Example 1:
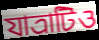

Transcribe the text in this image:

যাত্রাটিও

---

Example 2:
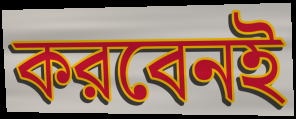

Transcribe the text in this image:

করবেনই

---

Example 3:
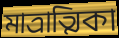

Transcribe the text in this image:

মাত্রাত্মিকা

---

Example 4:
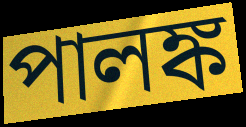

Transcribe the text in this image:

পালঙ্ক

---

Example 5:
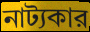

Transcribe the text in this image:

নাট্যকার